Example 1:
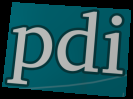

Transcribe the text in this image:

pdi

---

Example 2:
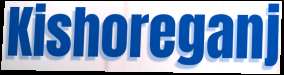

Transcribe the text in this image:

Kishoreganj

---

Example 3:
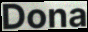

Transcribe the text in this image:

Dona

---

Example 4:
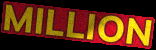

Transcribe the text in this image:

MILLION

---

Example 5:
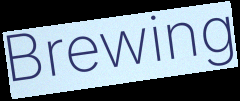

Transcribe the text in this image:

Brewing